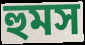
হুমস